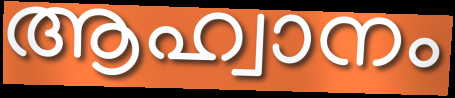
ആഹ്വാനം